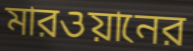
মারওয়ানের